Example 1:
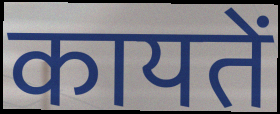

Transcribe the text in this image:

कायतें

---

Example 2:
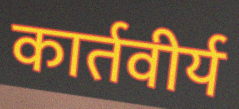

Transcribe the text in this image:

कार्तवीर्य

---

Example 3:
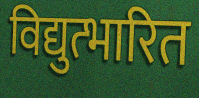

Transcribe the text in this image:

विद्युत्भारित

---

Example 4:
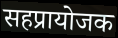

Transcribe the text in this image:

सहप्रायोजक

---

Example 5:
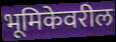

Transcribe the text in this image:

भूमिकेवरील